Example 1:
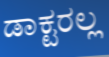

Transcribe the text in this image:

ಡಾಕ್ಟರಲ್ಲ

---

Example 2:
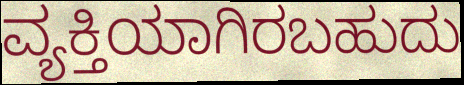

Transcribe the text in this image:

ವ್ಯಕ್ತಿಯಾಗಿರಬಹುದು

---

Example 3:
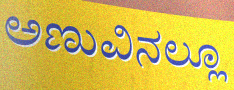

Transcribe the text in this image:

ಅಣುವಿನಲ್ಲೂ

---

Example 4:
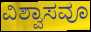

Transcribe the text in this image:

ವಿಶ್ವಾಸವೂ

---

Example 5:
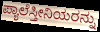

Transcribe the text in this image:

ಪ್ಯಾಲೆಸ್ತೀನಿಯರನ್ನು